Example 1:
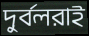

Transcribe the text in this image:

দুর্বলরাই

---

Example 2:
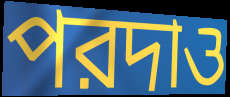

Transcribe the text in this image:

পরদাও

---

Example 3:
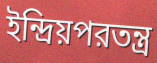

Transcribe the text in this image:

ইন্দ্রিয়পরতন্ত্র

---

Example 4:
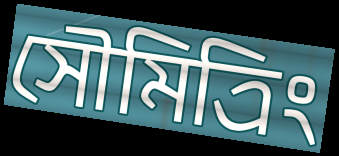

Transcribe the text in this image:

সৌমিত্রিং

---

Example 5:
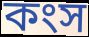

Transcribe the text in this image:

কংস